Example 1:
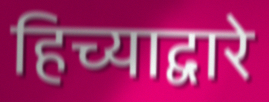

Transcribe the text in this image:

हिच्याद्वारे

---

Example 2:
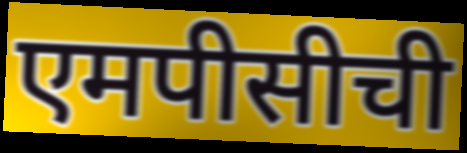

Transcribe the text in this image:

एमपीसीची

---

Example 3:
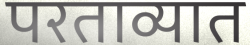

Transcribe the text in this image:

परताव्यात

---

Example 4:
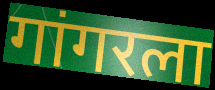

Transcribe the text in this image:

गांगरला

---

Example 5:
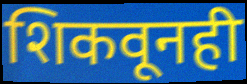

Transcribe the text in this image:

शिकवूनही